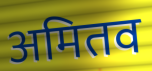
अमितव